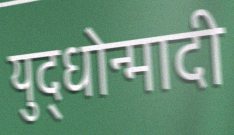
युद्धोन्मादी